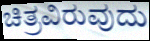
ಚಿತ್ರವಿರುವುದು